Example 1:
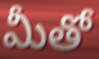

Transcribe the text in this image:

మీతో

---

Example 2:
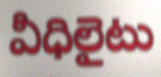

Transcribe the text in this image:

వీధిలైటు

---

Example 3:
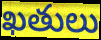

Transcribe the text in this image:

ఖతులు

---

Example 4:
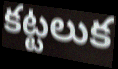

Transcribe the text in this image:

కట్టలుక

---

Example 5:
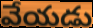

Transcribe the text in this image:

వేయడు